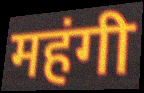
महंगी